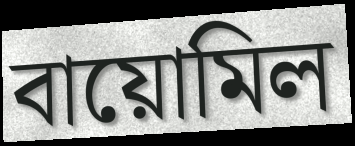
বায়োমিল